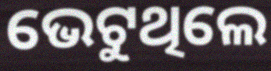
ଭେଟୁଥିଲେ